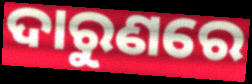
ଦାରୁଣରେ